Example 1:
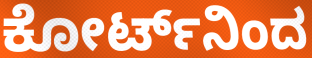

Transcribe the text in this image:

ಕೋರ್ಟ್‌ನಿಂದ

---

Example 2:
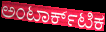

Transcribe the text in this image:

ಅಂಟಾರ್ಕ್‍ಟಿಕ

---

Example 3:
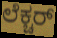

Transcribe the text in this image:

ಲೆಕ್ಚರ್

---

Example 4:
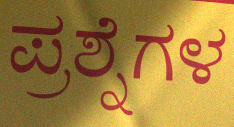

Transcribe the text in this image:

ಪ್ರಶ್ನೆಗಳ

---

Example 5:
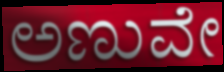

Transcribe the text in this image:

ಅಣುವೇ